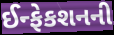
ઈન્ફેકશનની